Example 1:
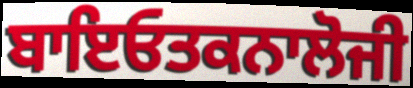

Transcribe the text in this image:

ਬਾਇਓਤਕਨਾਲੋਜੀ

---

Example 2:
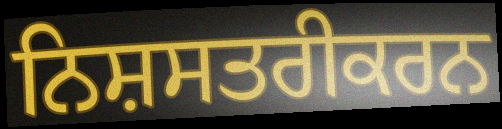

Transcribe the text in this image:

ਨਿਸ਼ਸਤਰੀਕਰਨ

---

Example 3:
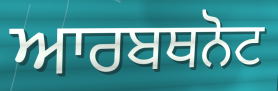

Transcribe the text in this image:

ਆਰਬਥਨੋਟ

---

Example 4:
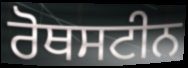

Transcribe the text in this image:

ਰੋਥਸਟੀਨ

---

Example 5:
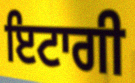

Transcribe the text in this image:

ਇਟਾਗੀ